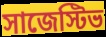
সাজেস্টিভ